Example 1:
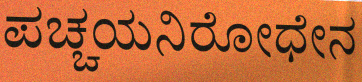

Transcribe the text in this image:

ಪಚ್ಚಯನಿರೋಧೇನ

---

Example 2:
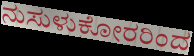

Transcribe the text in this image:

ನುಸುಳುಕೋರರಿಂದ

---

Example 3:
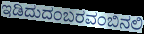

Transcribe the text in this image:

ಇಡಿದುದಂಬರವಂಬಿನಲಿ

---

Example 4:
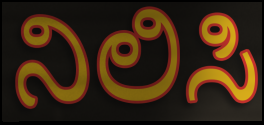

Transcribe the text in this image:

ನಿಲಿಸಿ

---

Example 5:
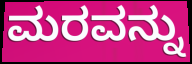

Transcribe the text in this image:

ಮರವನ್ನು